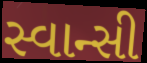
સ્વાન્સી